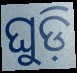
ଘୁଡ଼ି